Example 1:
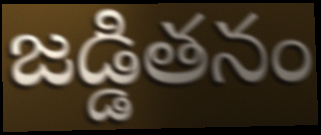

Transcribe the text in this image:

జడ్డితనం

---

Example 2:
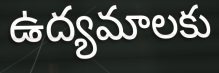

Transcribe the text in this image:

ఉద్యమాలకు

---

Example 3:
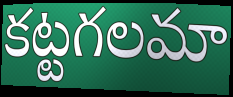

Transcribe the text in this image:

కట్టగలమా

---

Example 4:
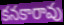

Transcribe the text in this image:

కనకారావు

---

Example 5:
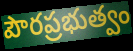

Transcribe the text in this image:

పౌరప్రభుత్వం